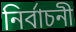
নির্বাচনী